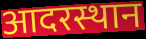
आदरस्थान